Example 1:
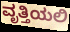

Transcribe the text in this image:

ವೃತ್ತಿಯಲಿ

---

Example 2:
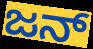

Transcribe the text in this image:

ಜನ್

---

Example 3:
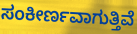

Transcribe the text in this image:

ಸಂಕೀರ್ಣವಾಗುತ್ತಿವೆ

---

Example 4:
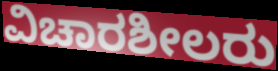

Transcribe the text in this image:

ವಿಚಾರಶೀಲರು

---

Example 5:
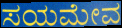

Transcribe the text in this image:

ಸಯಮೇವ